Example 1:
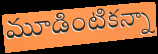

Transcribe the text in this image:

మూడింటికన్నా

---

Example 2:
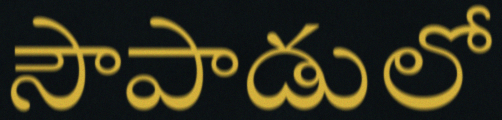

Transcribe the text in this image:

సౌపాడులో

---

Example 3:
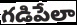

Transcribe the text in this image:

గడిపేలా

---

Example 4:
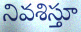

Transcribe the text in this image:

నివశిస్తూ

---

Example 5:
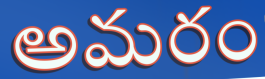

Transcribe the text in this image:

అమరం